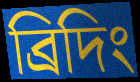
ব্রিদিং